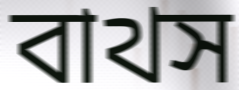
বাথস